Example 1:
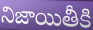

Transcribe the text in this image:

నిజాయితీకి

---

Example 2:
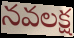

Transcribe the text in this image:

నవలక్ష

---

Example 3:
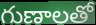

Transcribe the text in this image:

గుణాలతో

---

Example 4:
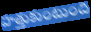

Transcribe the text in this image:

హత్తుకుంటుంది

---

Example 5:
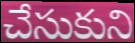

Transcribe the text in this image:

చేసుకుని